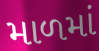
માળમાં